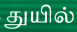
துயில்